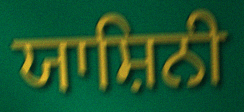
ਯਾਸ਼ਿਨੀ